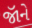
જૉને